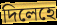
দিলেহে